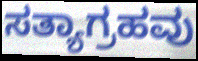
ಸತ್ಯಾಗ್ರಹವು